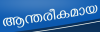
ആന്തരീകമായ